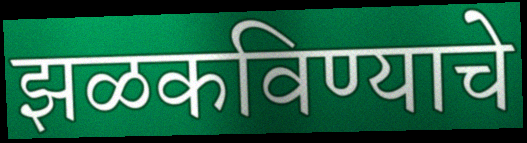
झळकविण्याचे